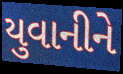
યુવાનીને